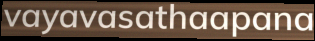
vayavasathaapana